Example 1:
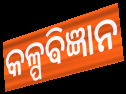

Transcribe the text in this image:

କଳ୍ପଵିଜ୍ଞାନ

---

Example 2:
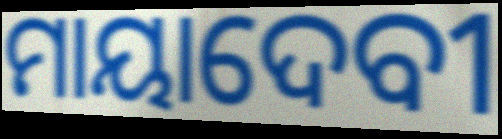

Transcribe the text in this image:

ମାୟାଦେବୀ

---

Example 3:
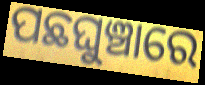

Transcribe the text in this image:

ପଛଘୁଞ୍ଚାରେ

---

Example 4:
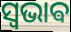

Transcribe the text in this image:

ସ୍ଵଭାଵ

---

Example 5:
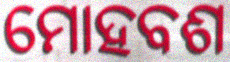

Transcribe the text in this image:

ମୋହବଶ